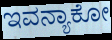
ಇವನ್ಯಾಕೋ